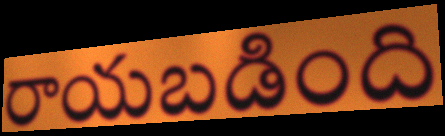
రాయబడింది